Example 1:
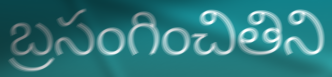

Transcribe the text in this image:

బ్రసంగించితిని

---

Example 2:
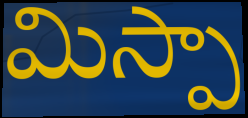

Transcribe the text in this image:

మిస్పా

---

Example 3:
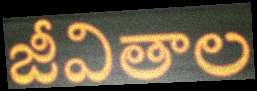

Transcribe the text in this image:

జీవితాల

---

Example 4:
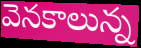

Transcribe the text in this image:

వెనకాలున్న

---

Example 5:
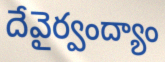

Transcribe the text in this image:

దేవైర్వంద్యాం